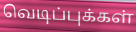
வெடிப்புக்கள்